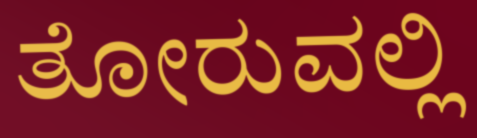
ತೋರುವಲ್ಲಿ